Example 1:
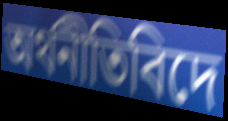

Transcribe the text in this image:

অৰ্থনীতিবিদে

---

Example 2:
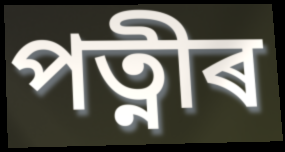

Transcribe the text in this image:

পত্নীৰ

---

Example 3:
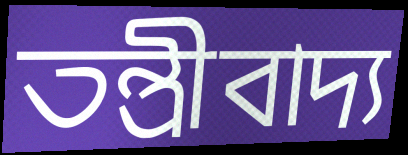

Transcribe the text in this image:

তন্ত্ৰীবাদ্য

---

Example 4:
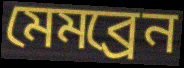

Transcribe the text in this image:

মেমব্ৰেন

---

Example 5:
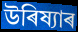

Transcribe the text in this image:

উৰিষ্যাৰ